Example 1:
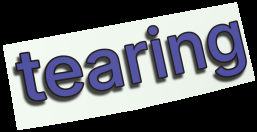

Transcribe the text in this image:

tearing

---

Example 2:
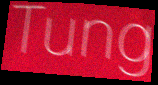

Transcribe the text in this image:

Tung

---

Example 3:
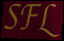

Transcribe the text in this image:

SFL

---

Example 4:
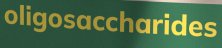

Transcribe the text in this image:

oligosaccharides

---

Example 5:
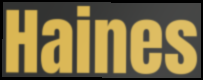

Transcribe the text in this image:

Haines